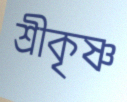
শ্ৰীকৃষ্ণ